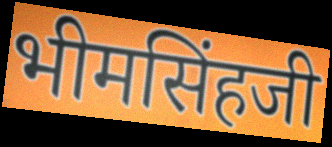
भीमसिंहजी